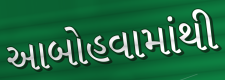
આબોહવામાંથી